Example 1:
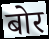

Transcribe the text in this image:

बोर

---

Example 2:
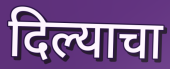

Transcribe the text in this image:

दिल्याचा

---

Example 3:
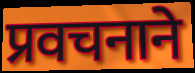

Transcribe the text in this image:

प्रवचनाने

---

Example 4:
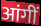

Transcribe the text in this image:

आंगीं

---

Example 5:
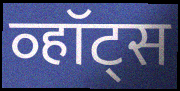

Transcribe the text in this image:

व्हॉट्स